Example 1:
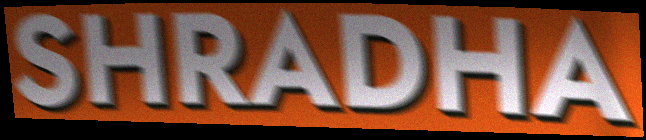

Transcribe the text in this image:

SHRADHA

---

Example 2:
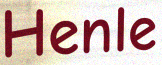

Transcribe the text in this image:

Henle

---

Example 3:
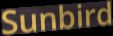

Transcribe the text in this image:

Sunbird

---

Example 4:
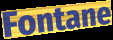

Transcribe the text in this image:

Fontane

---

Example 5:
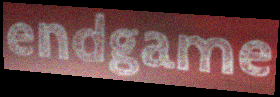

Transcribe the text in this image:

endgame